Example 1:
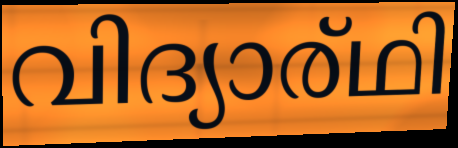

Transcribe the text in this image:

വിദ്യാര്ഥി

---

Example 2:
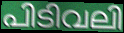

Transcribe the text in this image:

പിടിവലി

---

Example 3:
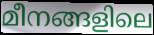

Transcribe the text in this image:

മീനങ്ങളിലെ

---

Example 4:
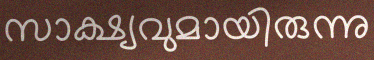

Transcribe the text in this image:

സാക്ഷ്യവുമായിരുന്നു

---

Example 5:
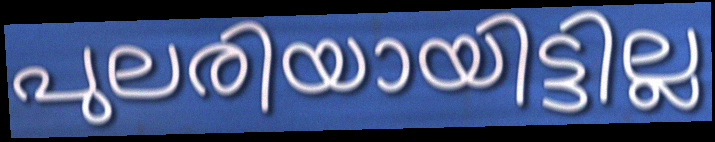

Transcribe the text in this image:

പുലരിയായിട്ടില്ല